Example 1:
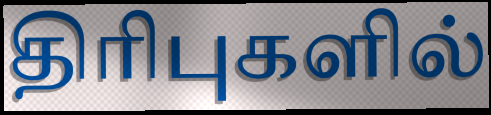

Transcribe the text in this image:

திரிபுகளில்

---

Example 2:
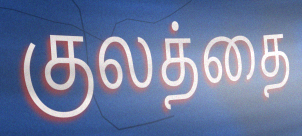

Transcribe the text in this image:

குலத்தை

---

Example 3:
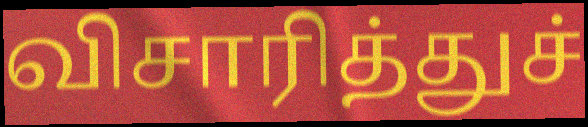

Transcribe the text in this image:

விசாரித்துச்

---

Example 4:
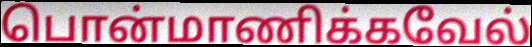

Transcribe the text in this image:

பொன்மாணிக்கவேல்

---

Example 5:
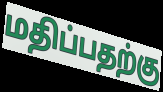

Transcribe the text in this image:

மதிப்பதற்கு